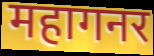
महागनर